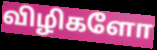
விழிகளோ